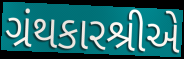
ગ્રંથકારશ્રીએ